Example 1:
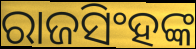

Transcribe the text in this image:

ରାଜସିଂହଙ୍କ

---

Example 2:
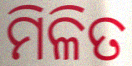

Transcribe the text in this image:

ମିଳିତ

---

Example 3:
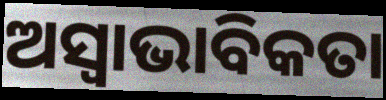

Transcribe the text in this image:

ଅସ୍ୱାଭାବିକତା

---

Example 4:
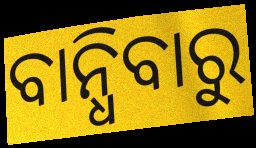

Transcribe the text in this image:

ବାନ୍ଧିବାରୁ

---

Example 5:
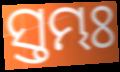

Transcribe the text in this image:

ସ୍ତମ୍ଭଃ